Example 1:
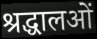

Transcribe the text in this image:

श्रद्धालओं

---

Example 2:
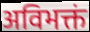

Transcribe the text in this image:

अविभक्तं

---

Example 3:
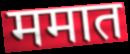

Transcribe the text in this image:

ममात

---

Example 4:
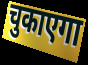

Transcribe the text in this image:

चुकाएगा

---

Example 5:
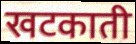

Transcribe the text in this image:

खटकाती